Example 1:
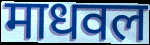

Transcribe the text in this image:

माधवल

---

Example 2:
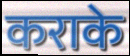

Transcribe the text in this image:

कराके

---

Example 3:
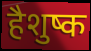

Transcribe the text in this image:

हैशुष्क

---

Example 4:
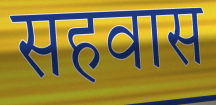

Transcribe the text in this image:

सहवास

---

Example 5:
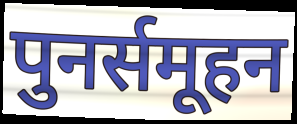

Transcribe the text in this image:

पुनर्समूहन